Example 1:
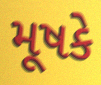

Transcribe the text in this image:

મૂષકે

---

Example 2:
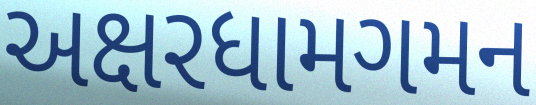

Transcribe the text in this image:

અક્ષરધામગમન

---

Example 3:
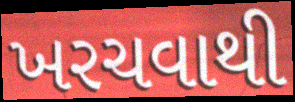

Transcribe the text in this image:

ખરચવાથી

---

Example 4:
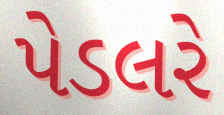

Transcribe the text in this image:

પેડલરે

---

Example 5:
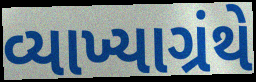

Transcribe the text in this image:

વ્યાખ્યાગ્રંથે